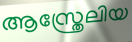
ആസ്ത്രേലിയ